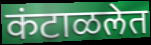
कंटाळलेत